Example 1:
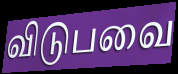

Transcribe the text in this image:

விடுபவை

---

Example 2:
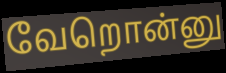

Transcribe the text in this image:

வேறொன்னு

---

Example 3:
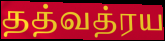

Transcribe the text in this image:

தத்வத்ரய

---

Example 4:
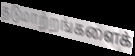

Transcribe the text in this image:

தடுமாற்றங்களைக்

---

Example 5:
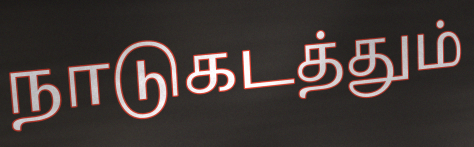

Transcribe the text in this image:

நாடுகடத்தும்